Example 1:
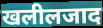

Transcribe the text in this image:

खलीलजाद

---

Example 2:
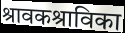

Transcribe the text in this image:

श्रावकश्राविका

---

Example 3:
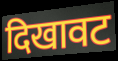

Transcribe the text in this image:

दिखावट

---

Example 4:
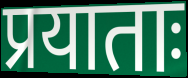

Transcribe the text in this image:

प्रयाताः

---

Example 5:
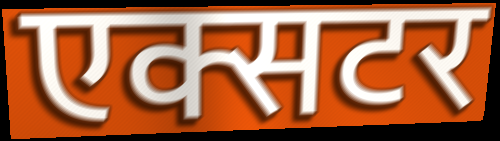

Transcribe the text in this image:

एक्सटर